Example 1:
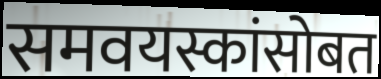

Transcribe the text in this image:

समवयस्कांसोबत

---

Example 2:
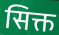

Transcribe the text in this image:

सिक्त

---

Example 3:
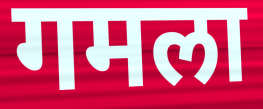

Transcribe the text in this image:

गमला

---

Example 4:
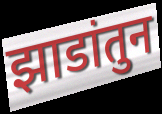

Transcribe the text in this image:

झाडांतुन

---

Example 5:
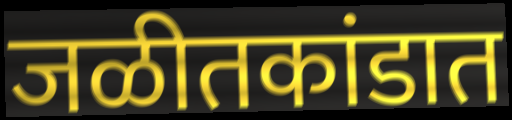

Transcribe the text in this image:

जळीतकांडात